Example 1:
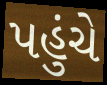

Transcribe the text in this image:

પહુંચે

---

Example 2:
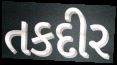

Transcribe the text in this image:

તકદીર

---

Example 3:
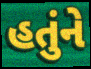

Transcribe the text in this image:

હતુંને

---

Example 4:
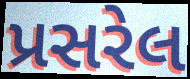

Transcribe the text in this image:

પ્રસરેલ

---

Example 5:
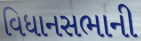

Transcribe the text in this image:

વિધાનસભાની